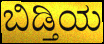
ಬಿಡ್ತಿಯ